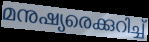
മനുഷ്യരെക്കുറിച്ച്